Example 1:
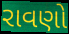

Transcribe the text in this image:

રાવણો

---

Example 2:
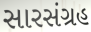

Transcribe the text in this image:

સારસંગ્રહ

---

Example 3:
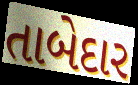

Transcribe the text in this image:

તાબેદાર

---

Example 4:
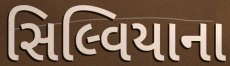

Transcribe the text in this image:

સિલ્વિયાના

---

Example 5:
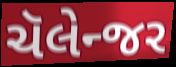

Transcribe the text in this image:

ચૅલેન્જર